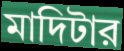
মাদিটার